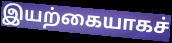
இயற்கையாகச்